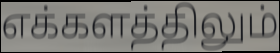
எக்களத்திலும்